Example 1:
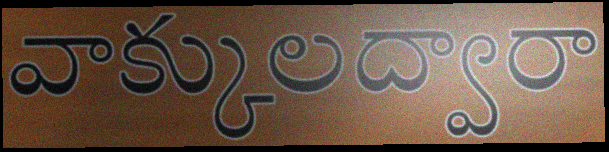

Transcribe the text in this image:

వాక్కులద్వారా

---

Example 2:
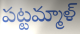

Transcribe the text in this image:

పట్టమ్మాళ్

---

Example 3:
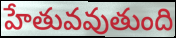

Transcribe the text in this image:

హేతువవుతుంది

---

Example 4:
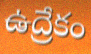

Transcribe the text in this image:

ఉద్రేకం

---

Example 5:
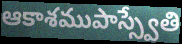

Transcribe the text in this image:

ఆకాశముపాస్స్వేతి